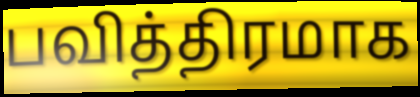
பவித்திரமாக